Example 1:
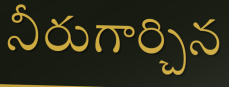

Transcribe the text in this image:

నీరుగార్చిన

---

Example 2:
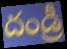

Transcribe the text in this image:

దండ్రీ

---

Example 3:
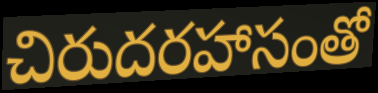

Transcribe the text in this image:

చిరుదరహాసంతో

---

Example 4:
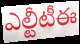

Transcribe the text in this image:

ఎల్టీటీఈ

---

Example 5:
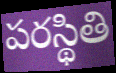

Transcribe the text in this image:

పరస్థితి